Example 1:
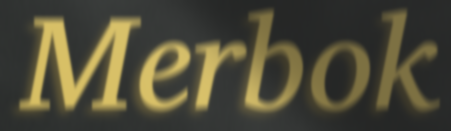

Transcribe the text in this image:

Merbok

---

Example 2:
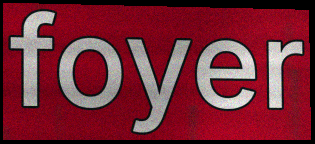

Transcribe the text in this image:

foyer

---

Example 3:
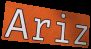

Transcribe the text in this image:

Ariz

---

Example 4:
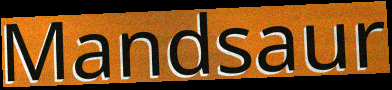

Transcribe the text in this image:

Mandsaur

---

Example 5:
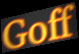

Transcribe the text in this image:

Goff